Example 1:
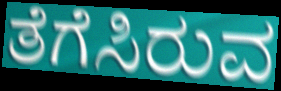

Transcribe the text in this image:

ತೆಗೆಸಿರುವ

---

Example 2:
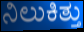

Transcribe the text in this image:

ನಿಲುಕಿತ್ತು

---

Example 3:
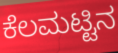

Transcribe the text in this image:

ಕೆಲಮಟ್ಟಿನ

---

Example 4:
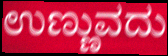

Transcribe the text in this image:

ಉಣ್ಣುವದು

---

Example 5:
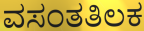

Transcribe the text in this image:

ವಸಂತತಿಲಕ